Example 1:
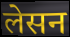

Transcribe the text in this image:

लेसन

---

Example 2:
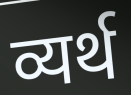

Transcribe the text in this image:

व्यर्थ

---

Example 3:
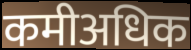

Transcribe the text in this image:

कमीअधिक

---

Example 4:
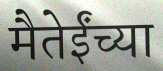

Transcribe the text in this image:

मैतेईंच्या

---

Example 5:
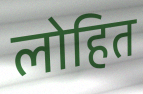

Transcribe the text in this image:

लोहित